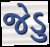
જેડુ